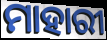
ମାହାରୀ